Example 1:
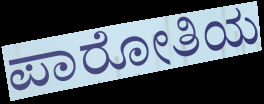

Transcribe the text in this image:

ಪಾರೋತಿಯ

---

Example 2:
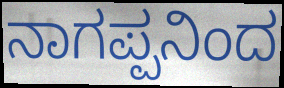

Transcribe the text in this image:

ನಾಗಪ್ಪನಿಂದ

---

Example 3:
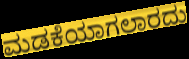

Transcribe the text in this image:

ಮಡಕೆಯಾಗಲಾರದು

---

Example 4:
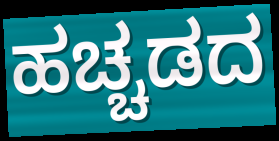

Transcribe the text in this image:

ಹಚ್ಚಡದ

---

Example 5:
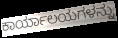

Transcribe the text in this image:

ಕಾರ್ಯಾಲಯಗಳನ್ನು